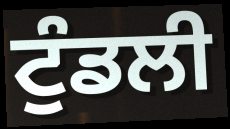
ਟੁੰਡਲੀ